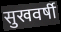
सुखवर्षी